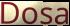
Dosa